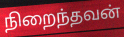
நிறைந்தவன்